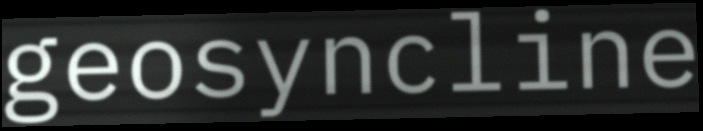
geosyncline